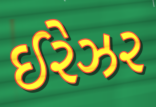
ઈરેઝર